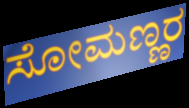
ಸೋಮಣ್ಣರ